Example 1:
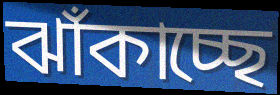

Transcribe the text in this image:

ঝাঁকাচ্ছে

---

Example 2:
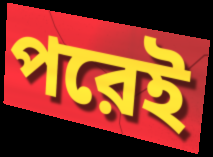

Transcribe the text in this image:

পরেই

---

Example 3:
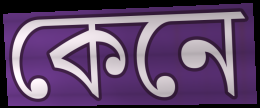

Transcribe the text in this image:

কেনে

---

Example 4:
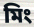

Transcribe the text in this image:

মিং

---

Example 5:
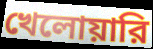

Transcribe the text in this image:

খেলোয়ারি